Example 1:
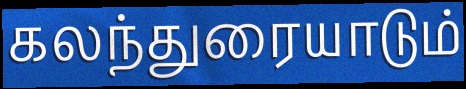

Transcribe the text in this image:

கலந்துரையாடும்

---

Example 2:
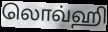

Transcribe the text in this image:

லொவ்ஹி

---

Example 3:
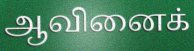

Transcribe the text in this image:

ஆவினைக்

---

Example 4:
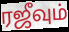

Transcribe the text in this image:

ரஜீவும்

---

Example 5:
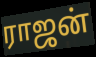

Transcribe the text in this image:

ராஜன்